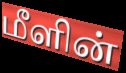
மீளின்